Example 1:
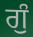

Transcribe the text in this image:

ਗੁੰ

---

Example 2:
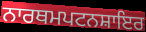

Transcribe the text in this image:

ਨਾਰਥਮਪਟਨਸ਼ਾਇਰ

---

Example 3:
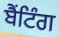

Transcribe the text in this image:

ਬੈਂਟਿੰਗ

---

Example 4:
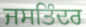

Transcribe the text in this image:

ਜਸਤਿੰਦਰ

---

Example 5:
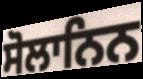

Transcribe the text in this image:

ਸੋਲਾਨਿਨ